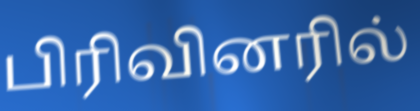
பிரிவினரில்